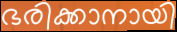
ഭരിക്കാനായി